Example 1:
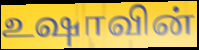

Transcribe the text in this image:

உஷாவின்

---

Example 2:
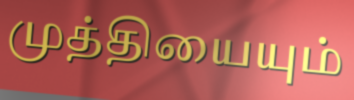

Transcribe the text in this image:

முத்தியையும்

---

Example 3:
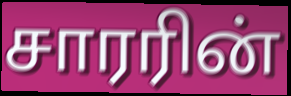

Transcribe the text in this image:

சாரரின்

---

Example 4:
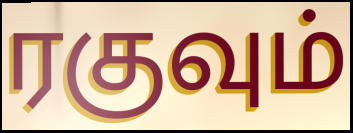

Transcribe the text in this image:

ரகுவும்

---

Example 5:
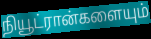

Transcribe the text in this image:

நியூட்ரான்களையும்